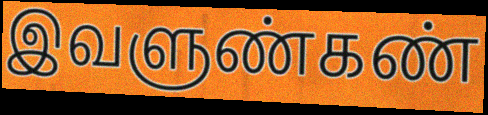
இவளுண்கண்